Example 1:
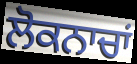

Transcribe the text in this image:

ਲੋਕਨਾਚਾਂ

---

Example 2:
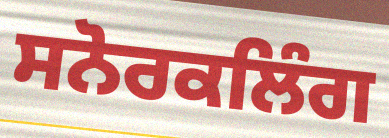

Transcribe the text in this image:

ਸਨੋਰਕਲਿੰਗ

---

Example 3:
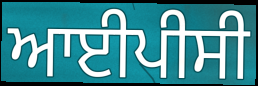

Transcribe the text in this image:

ਆਈਪੀਸੀ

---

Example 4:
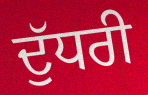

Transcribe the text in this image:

ਦੁੱਧਰੀ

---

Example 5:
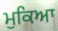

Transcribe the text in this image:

ਮੁਕਿਆ